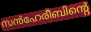
സൻഹേരീബിന്റെ